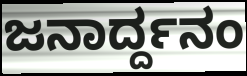
ಜನಾರ್ದ್ದನಂ